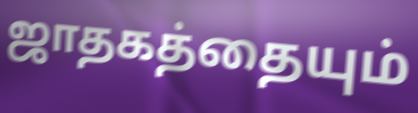
ஜாதகத்தையும்